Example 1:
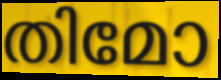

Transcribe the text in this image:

തിമോ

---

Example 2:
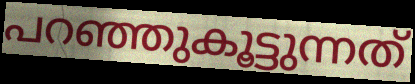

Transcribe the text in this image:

പറഞ്ഞുകൂട്ടുന്നത്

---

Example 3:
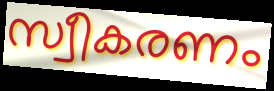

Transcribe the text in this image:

സ്വീകരണം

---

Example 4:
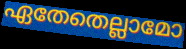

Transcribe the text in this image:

ഏതേതെല്ലാമോ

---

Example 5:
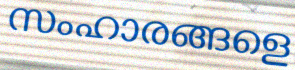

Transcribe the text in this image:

സംഹാരങ്ങളെ